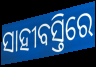
ସାହୀବସ୍ତିରେ